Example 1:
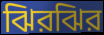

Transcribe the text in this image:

ঝিরঝির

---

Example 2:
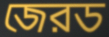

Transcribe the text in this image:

জেরড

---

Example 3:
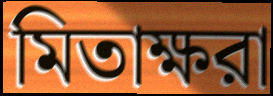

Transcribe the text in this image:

মিতাক্ষরা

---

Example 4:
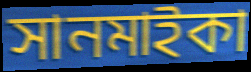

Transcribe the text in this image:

সানমাইকা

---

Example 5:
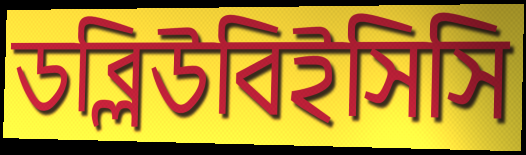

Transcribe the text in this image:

ডব্লিউবিইসিসি